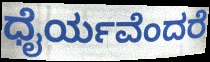
ಧೈರ್ಯವೆಂದರೆ